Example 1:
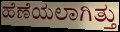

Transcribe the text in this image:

ಹೆಣೆಯಲಾಗಿತ್ತು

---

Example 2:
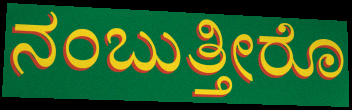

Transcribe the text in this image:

ನಂಬುತ್ತೀರೊ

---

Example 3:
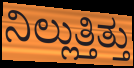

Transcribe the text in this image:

ನಿಲ್ಲುತ್ತಿತ್ತು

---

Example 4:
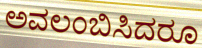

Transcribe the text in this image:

ಅವಲಂಬಿಸಿದರೂ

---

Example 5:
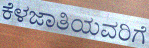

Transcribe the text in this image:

ಕೆಳಜಾತಿಯವರಿಗೆ